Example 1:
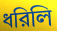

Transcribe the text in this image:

ধরিলি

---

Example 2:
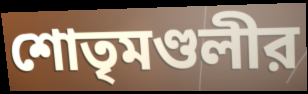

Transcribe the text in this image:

শোতৃমণ্ডলীর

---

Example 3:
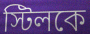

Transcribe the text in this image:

স্টিলকে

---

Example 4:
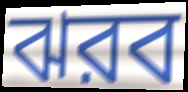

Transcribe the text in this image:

ঝরব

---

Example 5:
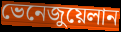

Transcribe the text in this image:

ভেনেজুয়েলান